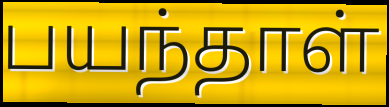
பயந்தாள்